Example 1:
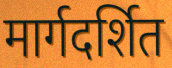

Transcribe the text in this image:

मार्गदर्शित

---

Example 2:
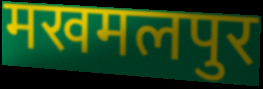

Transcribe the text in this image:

मखमलपुर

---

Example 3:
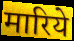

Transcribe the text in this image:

मारिये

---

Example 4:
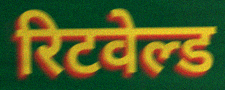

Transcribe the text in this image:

रिटवेल्ड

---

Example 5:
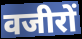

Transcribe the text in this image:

वजीरों